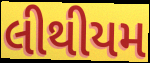
લીથીયમ